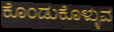
ಕೊಂಡುಕೊಳ್ಳುವ